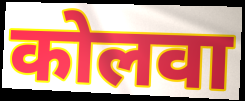
कोलवा